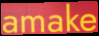
amake